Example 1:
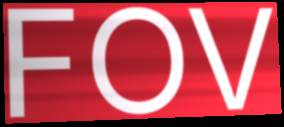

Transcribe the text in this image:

FOV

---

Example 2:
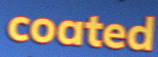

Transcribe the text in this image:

coated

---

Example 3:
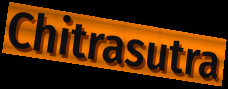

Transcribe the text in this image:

Chitrasutra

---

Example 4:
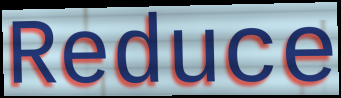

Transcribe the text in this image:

Reduce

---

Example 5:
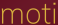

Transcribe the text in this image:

moti